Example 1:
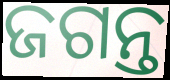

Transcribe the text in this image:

ଜଗନ୍ତ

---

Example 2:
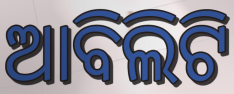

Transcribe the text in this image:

ଆବିଲିଟି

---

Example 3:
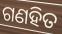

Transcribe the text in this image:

ଗଣହିତ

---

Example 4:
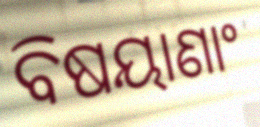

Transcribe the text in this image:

ବିଷୟାଣାଂ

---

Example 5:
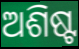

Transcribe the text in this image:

ଅଶିଷ୍ଟ